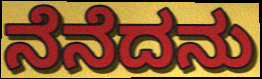
ನೆನೆದನು